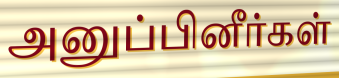
அனுப்பினீர்கள்